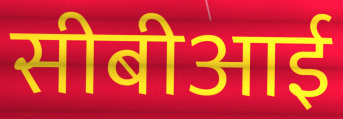
सीबीआई